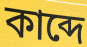
কাব্দে